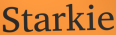
Starkie